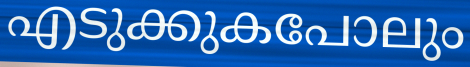
എടുക്കുകപോലും